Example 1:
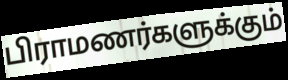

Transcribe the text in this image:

பிராமணர்களுக்கும்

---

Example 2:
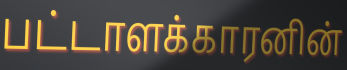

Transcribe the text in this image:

பட்டாளக்காரனின்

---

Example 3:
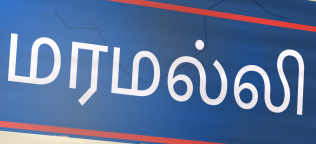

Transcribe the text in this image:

மரமல்லி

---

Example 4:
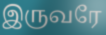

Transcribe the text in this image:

இருவரே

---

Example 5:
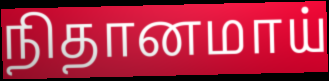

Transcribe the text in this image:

நிதானமாய்